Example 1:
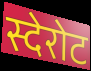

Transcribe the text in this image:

स्देरोट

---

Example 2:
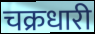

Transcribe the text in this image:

चक्रधारी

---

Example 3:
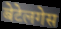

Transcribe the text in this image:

बेटेलगेस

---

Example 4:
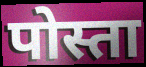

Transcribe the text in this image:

पोस्ता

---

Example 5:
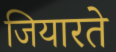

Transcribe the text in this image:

जियारते